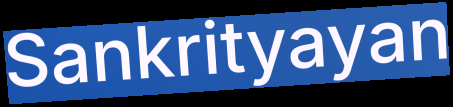
Sankrityayan